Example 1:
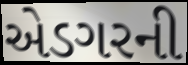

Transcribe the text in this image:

એડગરની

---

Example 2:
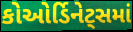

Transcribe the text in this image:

કોઓર્ડિનેટ્સમાં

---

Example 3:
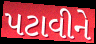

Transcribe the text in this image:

પટાવીને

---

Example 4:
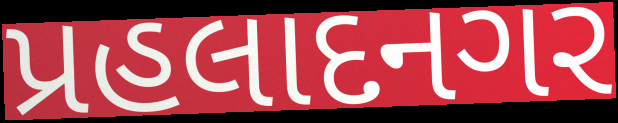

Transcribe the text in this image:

પ્રહલાદનગર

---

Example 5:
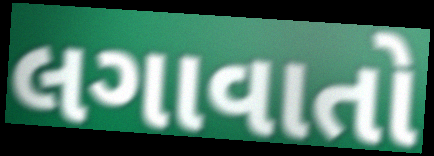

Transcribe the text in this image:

લગાવાતો